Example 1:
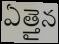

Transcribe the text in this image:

ఏత్తైన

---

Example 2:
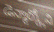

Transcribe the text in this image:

డెన్మార్క్లోని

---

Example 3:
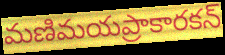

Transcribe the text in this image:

మణిమయప్రాకారకన్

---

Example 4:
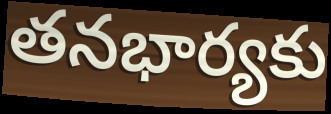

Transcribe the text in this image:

తనభార్యకు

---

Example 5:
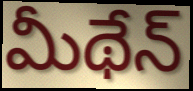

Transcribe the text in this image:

మీథేన్